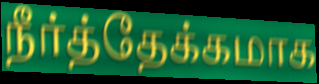
நீர்த்தேக்கமாக